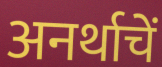
अनर्थाचें